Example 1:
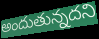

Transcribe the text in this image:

అందుతున్నదని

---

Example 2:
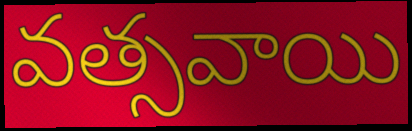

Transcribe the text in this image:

వత్సవాయి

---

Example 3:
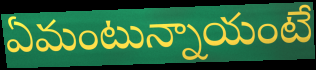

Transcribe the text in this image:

ఏమంటున్నాయంటే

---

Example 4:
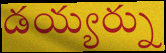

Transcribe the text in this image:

డయ్యర్ను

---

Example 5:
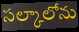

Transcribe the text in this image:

సల్కాలోను